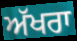
ਅੱਖਰਾ